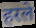
हरले